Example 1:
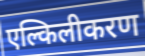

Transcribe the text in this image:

एल्किलीकरण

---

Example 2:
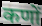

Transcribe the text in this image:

कणों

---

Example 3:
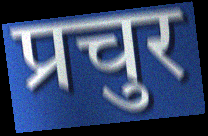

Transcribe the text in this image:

प्रचुर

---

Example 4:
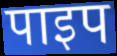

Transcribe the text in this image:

पाइप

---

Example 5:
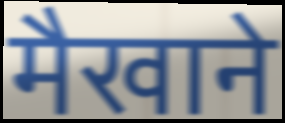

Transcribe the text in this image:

मैखाने